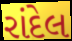
રાંદેલ